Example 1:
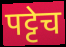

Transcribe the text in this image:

पट्टेच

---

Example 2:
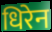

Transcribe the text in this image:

धिरेन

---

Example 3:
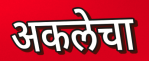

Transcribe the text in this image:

अकलेचा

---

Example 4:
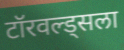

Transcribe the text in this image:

टॉरवल्ड्सला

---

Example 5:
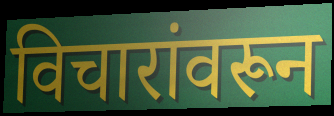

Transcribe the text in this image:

विचारांवरून